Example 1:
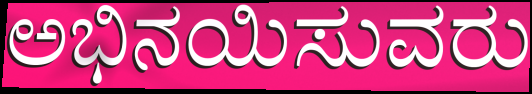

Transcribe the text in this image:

ಅಭಿನಯಿಸುವರು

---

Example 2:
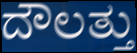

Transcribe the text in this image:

ದೌಲತ್ತು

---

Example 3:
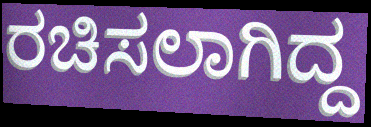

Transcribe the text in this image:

ರಚಿಸಲಾಗಿದ್ದ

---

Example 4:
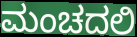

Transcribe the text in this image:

ಮಂಚದಲಿ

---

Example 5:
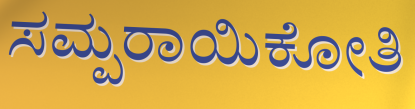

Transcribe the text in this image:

ಸಮ್ಪರಾಯಿಕೋತಿ